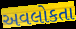
અવલોકતા